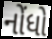
નોંધો